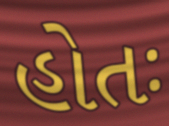
હોતઃ